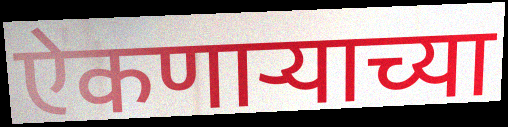
ऐकणाऱ्याच्या